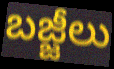
బజ్జీలు